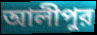
আলীপুর